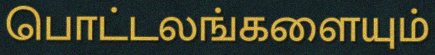
பொட்டலங்களையும்